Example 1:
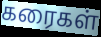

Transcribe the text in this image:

கரைகள்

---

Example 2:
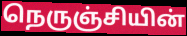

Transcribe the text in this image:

நெருஞ்சியின்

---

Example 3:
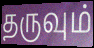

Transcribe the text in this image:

தருவும்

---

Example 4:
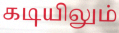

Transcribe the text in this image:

கடியிலும்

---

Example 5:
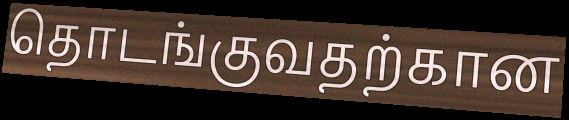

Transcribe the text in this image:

தொடங்குவதற்கான